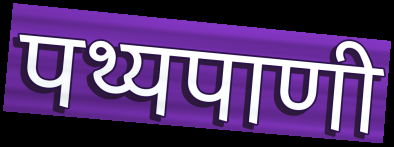
पथ्यपाणी